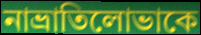
নাভ্রাতিলোভাকে